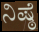
ನಿಷ್ಠೆ